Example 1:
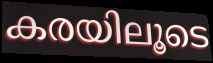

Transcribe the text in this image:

കരയിലൂടെ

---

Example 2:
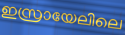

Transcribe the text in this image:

ഇസ്രായേലിലെ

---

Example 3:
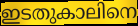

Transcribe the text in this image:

ഇടതുകാലിനെ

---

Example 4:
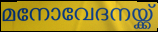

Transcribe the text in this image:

മനോവേദനയ്ക്ക്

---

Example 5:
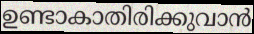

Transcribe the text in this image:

ഉണ്ടാകാതിരിക്കുവാൻ